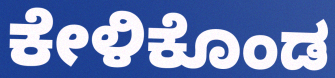
ಕೇಳಿಕೊಂಡ